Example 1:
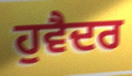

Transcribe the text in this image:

ਹੁਵੈਦਰ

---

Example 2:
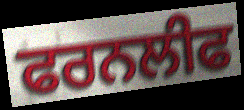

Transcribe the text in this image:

ਫਰਨਲੀਫ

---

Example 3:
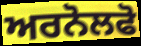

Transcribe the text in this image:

ਅਰਨੋਲਫੋ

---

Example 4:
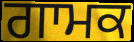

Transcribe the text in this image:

ਗਾਮਕ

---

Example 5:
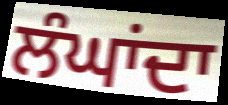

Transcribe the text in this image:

ਲੰਘਾਂਦਾ